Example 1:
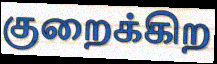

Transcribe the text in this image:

குறைக்கிற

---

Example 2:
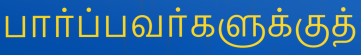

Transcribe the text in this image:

பார்ப்பவர்களுக்குத்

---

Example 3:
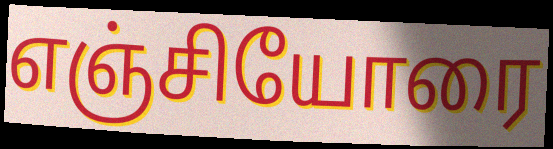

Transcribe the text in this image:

எஞ்சியோரை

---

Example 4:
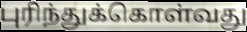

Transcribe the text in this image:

புரிந்துக்கொள்வது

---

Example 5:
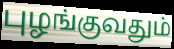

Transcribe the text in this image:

புழங்குவதும்